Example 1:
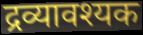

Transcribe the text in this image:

द्रव्यावश्यक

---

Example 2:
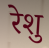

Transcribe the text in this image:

रेशु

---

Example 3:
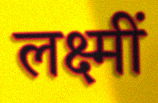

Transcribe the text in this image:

लक्ष्मीं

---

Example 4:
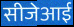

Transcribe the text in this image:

सीजेआई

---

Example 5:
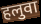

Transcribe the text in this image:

हलुवा